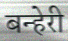
बन्हेरी